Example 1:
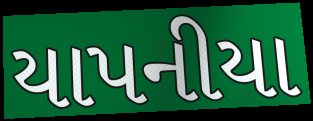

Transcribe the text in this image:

યાપનીયા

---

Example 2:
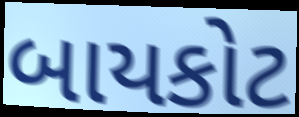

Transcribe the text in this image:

બાયકોટ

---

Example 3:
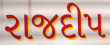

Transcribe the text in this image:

રાજદીપ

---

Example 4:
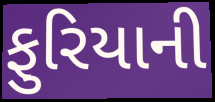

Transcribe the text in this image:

ફુરિયાની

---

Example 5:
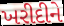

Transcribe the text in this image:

ખરીદીને